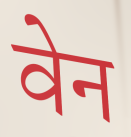
वेन